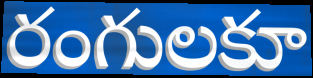
రంగులకూ